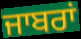
ਜਾਬਰਾਂ